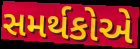
સમર્થકોએ